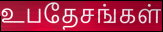
உபதேசங்கள்